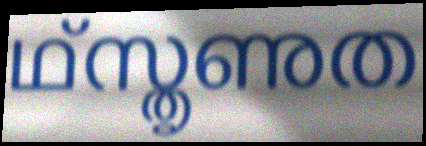
ഥ്സ്തൃണുത